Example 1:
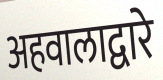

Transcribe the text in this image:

अहवालाद्वारे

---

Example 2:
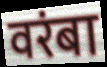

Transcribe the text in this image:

वरंबा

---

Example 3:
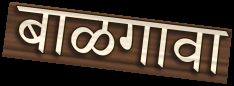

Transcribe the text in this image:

बाळगावा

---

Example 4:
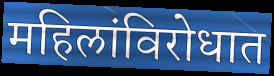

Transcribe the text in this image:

महिलांविरोधात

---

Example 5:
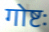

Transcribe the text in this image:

गोष्टः